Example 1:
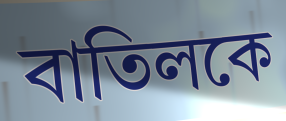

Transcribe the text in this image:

বাতিলকে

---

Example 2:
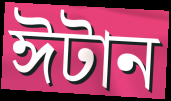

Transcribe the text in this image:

ঈটান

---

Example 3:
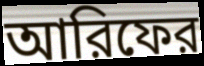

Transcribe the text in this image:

আরিফের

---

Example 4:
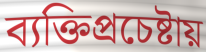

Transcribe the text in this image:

ব্যক্তিপ্রচেষ্টায়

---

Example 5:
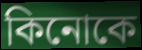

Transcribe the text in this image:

কিনোকে